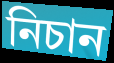
নিচান